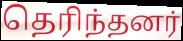
தெரிந்தனர்